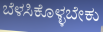
ಬೆಳಸಿಕೊಳ್ಳಬೇಕು